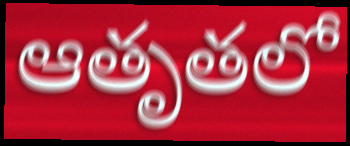
ఆతృతలో